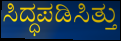
ಸಿದ್ಧಪಡಿಸಿತ್ತು